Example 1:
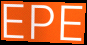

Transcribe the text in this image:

EPE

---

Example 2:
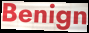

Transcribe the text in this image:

Benign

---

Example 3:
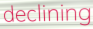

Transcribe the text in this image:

declining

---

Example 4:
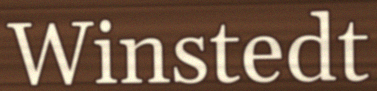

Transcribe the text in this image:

Winstedt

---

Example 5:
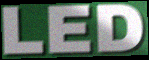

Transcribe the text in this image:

LED